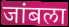
जांबला